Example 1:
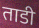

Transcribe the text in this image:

ताडी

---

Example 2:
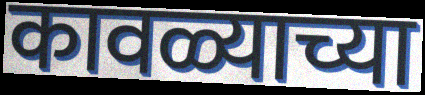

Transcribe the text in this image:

कावळ्याच्या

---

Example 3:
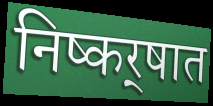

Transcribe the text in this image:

निष्कर्षात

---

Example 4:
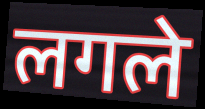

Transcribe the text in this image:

लगले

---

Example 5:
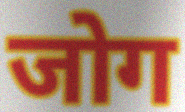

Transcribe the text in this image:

जोग